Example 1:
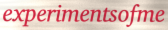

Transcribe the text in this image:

experimentsofme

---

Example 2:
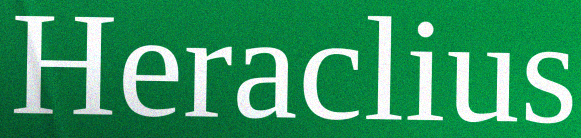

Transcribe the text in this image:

Heraclius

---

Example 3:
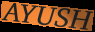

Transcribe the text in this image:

AYUSH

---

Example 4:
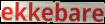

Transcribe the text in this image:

ekkebare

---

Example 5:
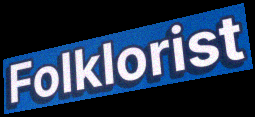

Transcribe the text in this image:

Folklorist